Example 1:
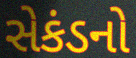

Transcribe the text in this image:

સેકંડનો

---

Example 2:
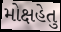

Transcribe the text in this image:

મોક્ષહેતુ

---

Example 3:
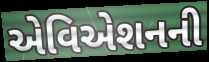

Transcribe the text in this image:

એવિએશનની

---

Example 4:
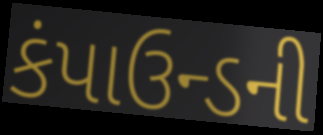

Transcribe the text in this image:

કંપાઉન્ડની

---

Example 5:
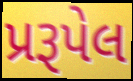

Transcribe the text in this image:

પ્રરૂપેલ